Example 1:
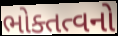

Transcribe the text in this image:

ભોક્તત્વનો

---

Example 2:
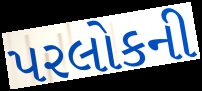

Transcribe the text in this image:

પરલોકની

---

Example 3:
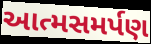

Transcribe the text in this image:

આત્મસમર્પણ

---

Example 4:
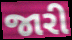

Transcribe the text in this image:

જારી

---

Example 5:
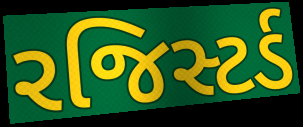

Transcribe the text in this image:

રજિસ્ટર્ડ